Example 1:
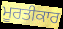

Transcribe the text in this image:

ਮੂਰਤੀਕਾਰ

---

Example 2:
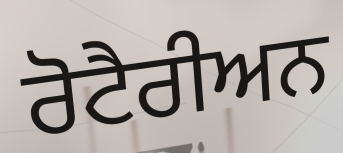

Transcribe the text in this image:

ਰੋਟੈਰੀਅਨ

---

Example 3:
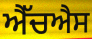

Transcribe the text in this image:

ਐੱਚਐਸ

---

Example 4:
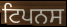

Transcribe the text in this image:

ਟਿਪਨਸ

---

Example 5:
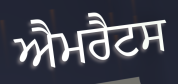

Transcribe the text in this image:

ਐਮਰੈਟਸ